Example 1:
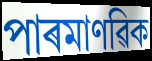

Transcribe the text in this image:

পাৰমাণৱিক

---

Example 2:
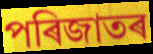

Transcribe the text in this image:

পৰিজাতৰ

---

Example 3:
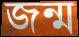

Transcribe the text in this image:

জন্ম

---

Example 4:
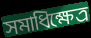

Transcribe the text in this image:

সমাধিক্ষেত্ৰ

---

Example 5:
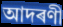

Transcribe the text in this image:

আদৰণী